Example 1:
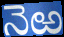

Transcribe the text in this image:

నెఱ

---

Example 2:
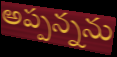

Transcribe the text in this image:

అప్పన్నను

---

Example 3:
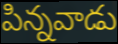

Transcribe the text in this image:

పిన్నవాడు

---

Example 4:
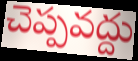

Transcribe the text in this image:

చెప్పవద్దు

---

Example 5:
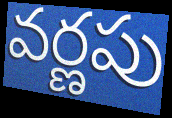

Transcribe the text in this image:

వర్ణపు